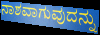
ನಾಶವಾಗುವುದನ್ನು